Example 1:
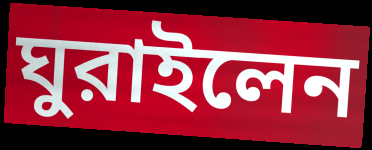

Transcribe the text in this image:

ঘুরাইলেন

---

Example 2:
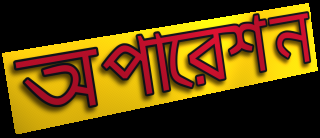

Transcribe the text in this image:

অপারেশন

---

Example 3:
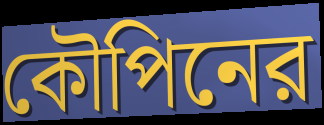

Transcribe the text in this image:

কৌপিনের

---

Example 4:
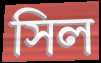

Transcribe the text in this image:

সিল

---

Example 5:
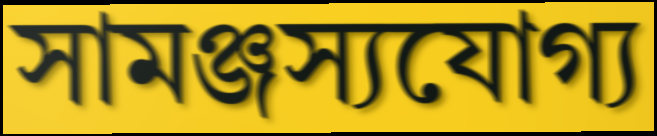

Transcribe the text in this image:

সামঞ্জস্যযোগ্য